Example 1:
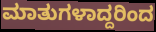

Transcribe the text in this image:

ಮಾತುಗಳಾದ್ದರಿಂದ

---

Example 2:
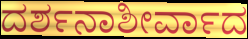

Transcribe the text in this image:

ದರ್ಶನಾಶೀರ್ವಾದ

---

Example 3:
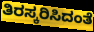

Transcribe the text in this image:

ತಿರಸ್ಕರಿಸಿದಂತೆ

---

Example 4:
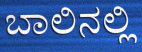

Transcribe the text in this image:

ಬಾಲಿನಲ್ಲಿ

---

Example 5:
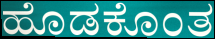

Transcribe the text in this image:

ಹೊಡಕೊಂತ